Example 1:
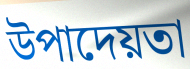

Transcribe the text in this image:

উপাদেয়তা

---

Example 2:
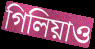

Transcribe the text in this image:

গিলিয়াও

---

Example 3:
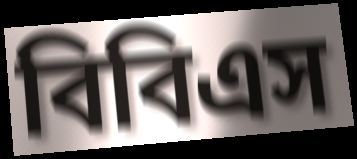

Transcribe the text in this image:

বিবিএস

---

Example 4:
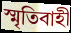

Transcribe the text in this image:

স্মৃতিবাহী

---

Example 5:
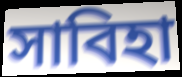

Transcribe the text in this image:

সাবিহা